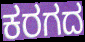
ಕರಗದ